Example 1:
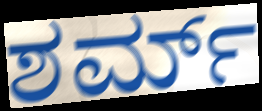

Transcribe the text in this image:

ಶರ್ಮ್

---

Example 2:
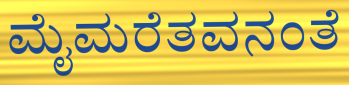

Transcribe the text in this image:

ಮೈಮರೆತವನಂತೆ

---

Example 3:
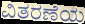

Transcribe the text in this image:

ವಿತರಣೆಯ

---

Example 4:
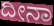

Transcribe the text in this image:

ದೀನಾ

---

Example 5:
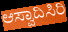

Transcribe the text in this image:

ಆಸ್ವಾದಿಸಿರಿ